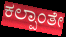
ಕಲ್ಪಾಂತೇ